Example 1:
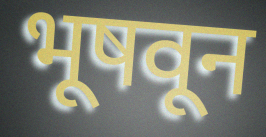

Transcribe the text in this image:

भूषवून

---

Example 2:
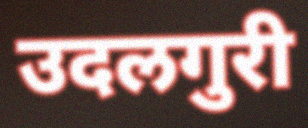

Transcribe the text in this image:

उदलगुरी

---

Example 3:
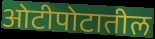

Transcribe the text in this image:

ओटीपोटातील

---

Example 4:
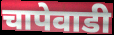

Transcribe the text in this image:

चापेवाडी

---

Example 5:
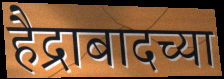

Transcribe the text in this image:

हैद्राबादच्या